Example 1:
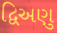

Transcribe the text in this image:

દ્વિઅણુ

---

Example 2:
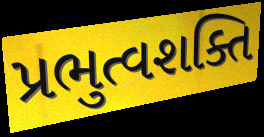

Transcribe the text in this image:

પ્રભુત્વશક્તિ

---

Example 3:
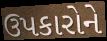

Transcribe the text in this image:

ઉપકારોને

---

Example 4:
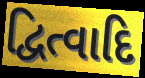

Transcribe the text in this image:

દ્વિત્વાદિ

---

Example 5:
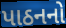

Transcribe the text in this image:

પાઠનનો